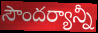
సౌందర్యాన్నీ